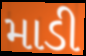
માડી